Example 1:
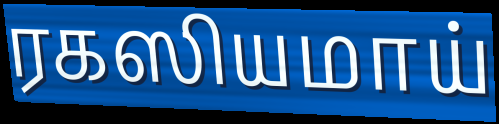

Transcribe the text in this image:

ரகஸியமாய்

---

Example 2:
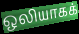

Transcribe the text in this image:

ஒலியாகக்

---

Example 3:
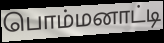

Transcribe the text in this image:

பொம்மனாட்டி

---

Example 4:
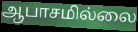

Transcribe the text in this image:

ஆபாசமில்லை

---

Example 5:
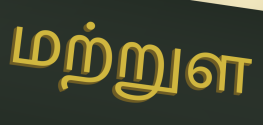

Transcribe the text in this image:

மற்றுள